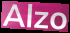
Alzo